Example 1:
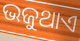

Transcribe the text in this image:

ଭଜୁଥାଏ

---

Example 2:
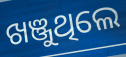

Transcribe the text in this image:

ଖଞ୍ଜୁଥିଲେ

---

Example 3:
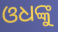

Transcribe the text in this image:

ଓଧଙ୍କୁ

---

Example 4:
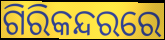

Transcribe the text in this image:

ଗିରିକନ୍ଦରରେ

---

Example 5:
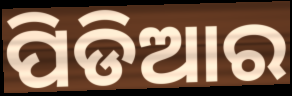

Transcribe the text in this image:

ପିଡିଆର